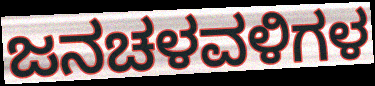
ಜನಚಳವಳಿಗಳ